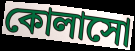
কোলাসো